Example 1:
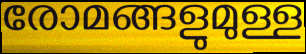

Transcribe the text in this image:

രോമങ്ങളുമുള്ള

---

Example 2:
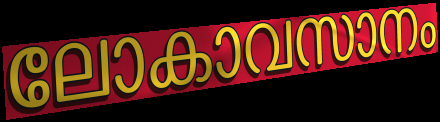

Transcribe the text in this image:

ലോകാവസാനം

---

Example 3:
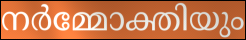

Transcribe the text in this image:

നർമ്മോക്തിയും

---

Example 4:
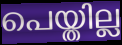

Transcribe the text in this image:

പെയ്തില്ല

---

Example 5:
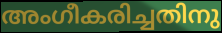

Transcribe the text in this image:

അംഗീകരിച്ചതിനു